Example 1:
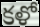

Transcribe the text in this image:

కళో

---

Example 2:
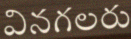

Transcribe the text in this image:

వినగలరు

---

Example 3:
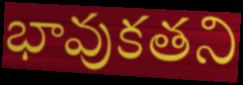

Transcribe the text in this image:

భావుకతని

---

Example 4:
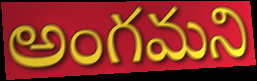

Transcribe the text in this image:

అంగమని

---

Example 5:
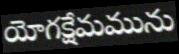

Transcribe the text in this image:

యోగక్షేమమును